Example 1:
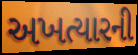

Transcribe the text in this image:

અખત્યારની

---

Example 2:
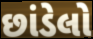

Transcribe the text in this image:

છાંડેલો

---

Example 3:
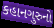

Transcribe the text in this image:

કહાનગુરુનો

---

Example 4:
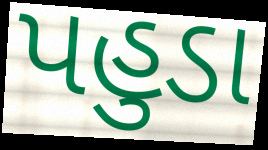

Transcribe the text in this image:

પહુડા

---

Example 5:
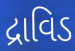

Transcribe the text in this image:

દ્રાવિડ